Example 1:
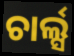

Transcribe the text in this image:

ଚାର୍ଲ୍ସ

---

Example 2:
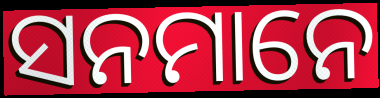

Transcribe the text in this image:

ସନମାନେ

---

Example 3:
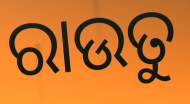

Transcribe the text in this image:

ରାଉତୁ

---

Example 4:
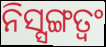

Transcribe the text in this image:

ନିସ୍ସଙ୍ଗତ୍ୱଂ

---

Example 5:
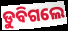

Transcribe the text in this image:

ଡୁବିଗଲେ